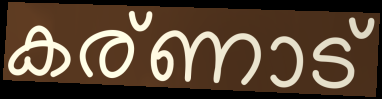
കര്ണാട്